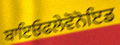
ਬਾਇਓਫਲੇਵੋਨੋਇਡ